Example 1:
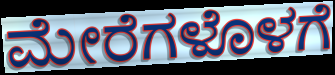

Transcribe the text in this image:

ಮೇರೆಗಳೊಳಗೆ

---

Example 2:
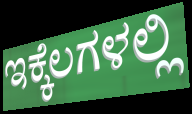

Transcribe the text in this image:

ಇಕ್ಕೆಲಗಳಲ್ಲಿ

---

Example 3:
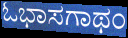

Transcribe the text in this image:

ಓಭಾಸಗಾಥಂ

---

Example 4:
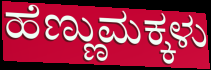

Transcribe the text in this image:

ಹೆಣ್ಣುಮಕ್ಕಳು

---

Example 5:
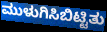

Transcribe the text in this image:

ಮುಳುಗಿಸಿಬಿಟ್ಟಿತು